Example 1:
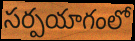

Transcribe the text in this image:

సర్పయాగంలో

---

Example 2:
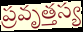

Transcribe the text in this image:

ప్రవృత్తస్య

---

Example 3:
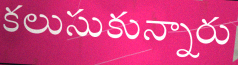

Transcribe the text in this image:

కలుసుకున్నారు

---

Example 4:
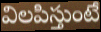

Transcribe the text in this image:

విలపిస్తుంటే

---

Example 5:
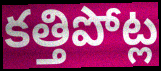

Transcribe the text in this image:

కత్తిపోట్ల